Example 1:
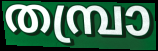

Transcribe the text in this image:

തമ്പ്രാ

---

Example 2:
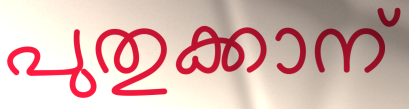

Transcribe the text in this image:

പുതുക്കാന്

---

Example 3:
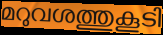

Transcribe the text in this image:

മറുവശത്തുകൂടി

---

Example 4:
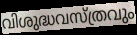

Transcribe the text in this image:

വിശുദ്ധവസ്ത്രവും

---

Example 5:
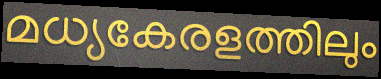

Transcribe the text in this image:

മധ്യകേരളത്തിലും